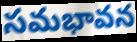
సమభావన